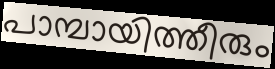
പാമ്പായിത്തീരും